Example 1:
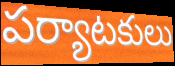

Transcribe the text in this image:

పర్యాటకులు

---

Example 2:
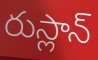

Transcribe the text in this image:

రుస్లాన్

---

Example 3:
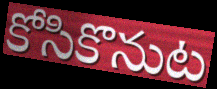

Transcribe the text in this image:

కోసికొనుట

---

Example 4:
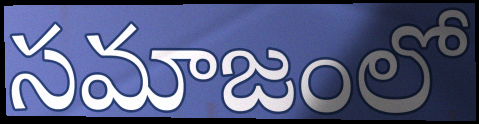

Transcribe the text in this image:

సమాజంలో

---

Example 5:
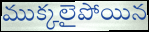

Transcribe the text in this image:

ముక్కలైపోయిన